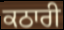
ਕਠਾਰੀ